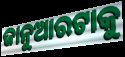
ଜାନୁଆରଟାକୁ